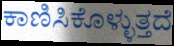
ಕಾಣಿಸಿಕೊಳ್ಳುತ್ತದೆ